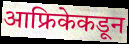
आफ्रिकेकडून